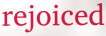
rejoiced